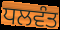
ਧਲਵੰਤ